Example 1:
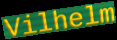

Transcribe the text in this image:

Vilhelm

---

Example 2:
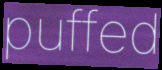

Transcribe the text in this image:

puffed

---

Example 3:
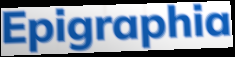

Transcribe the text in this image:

Epigraphia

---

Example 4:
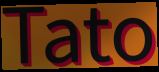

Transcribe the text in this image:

Tato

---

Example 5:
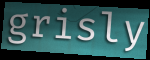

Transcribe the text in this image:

grisly